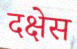
दक्षेस